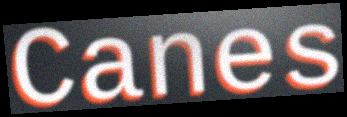
Canes